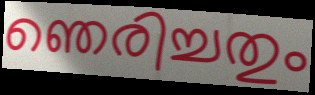
ഞെരിച്ചതും